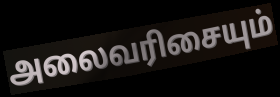
அலைவரிசையும்